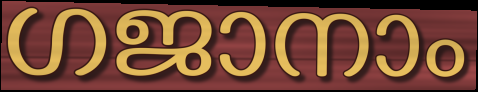
ഗജാനാം